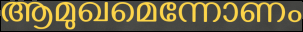
ആമുഖമെന്നോണം